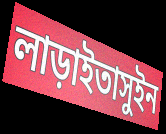
লাড়াইতাসুইন